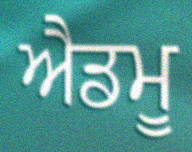
ਐਡਮੂ